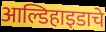
आल्डिहाइडाचे